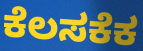
ಕೆಲಸಕೆಕ